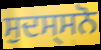
ਸੁਦਸ੍ਸਨੋ